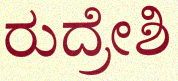
ರುದ್ರೇಶಿ